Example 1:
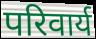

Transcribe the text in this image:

परिवार्य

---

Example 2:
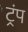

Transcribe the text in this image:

ट्रंप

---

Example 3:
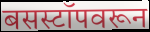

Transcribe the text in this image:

बसस्टॉपवरून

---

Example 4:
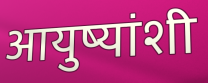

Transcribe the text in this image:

आयुष्यांशी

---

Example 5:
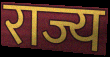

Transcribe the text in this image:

राज्य